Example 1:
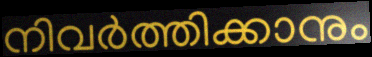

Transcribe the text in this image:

നിവർത്തിക്കാനും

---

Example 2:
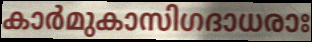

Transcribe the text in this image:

കാർമുകാസിഗദാധരാഃ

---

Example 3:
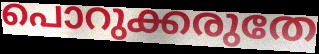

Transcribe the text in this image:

പൊറുക്കരുതേ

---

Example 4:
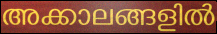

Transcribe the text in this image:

അക്കാലങ്ങളിൽ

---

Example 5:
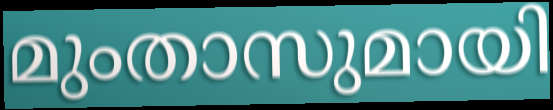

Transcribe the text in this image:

മുംതാസുമായി